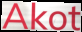
Akot